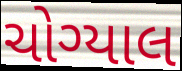
ચોગ્યાલ